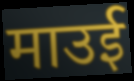
माउई